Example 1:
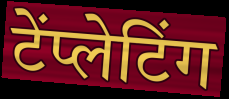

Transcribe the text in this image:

टेंप्लेटिंग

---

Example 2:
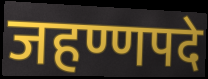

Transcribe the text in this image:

जहण्णपदे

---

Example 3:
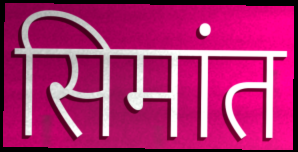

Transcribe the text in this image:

सिमांत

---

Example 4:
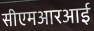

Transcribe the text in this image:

सीएमआरआई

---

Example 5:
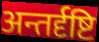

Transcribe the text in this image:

अन्तर्दृष्टि